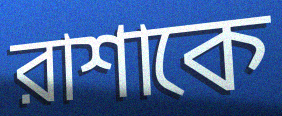
রাশাকে